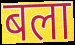
बला